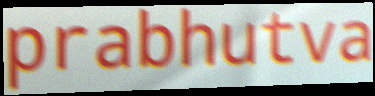
prabhutva